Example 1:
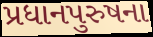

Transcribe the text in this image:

પ્રધાનપુરુષના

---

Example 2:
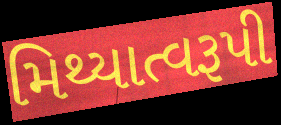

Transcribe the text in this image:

મિથ્યાત્વરૂપી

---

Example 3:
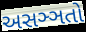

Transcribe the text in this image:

અસઞ્ઞતો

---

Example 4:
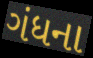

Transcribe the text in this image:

ગંધના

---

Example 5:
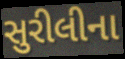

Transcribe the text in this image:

સુરીલીના